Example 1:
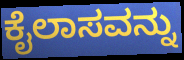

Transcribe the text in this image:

ಕೈಲಾಸವನ್ನು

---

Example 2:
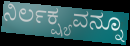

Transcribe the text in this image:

ನಿರ್ಲಕ್ಷ್ಯವನ್ನೂ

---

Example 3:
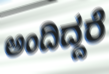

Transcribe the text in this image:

ಅಂದಿದ್ದರೆ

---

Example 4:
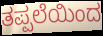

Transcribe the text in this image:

ತಪ್ಪಲೆಯಿಂದ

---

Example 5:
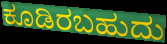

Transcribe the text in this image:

ಕೂಡಿರಬಹುದು